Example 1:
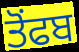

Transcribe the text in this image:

ਤੋਂਫਬ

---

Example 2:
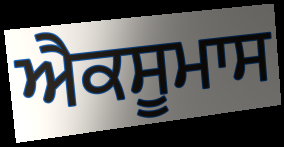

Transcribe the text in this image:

ਐਕਸੂਮਾਸ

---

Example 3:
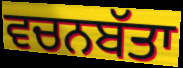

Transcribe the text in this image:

ਵਚਨਬੱਤਾ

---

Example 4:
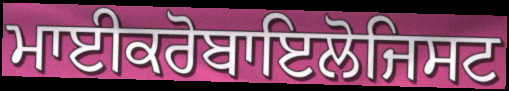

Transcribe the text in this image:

ਮਾਈਕਰੋਬਾਇਲੋਜਿਸਟ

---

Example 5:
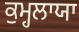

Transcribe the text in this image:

ਕੁਮ੍ਹਲਾਯਾ